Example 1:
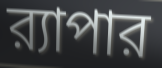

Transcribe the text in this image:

র‍্যাপার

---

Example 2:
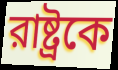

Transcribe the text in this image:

রাষ্ট্রকে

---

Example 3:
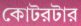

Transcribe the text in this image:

কোটরটার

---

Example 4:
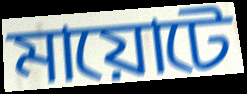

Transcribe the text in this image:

মায়োটে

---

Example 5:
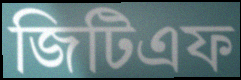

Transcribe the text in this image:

জিটিএফ